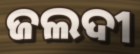
ଜଲଦୀ